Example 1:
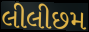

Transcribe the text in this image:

લીલીછમ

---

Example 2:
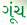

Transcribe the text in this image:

ગૂંચ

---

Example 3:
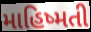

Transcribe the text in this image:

માહિષ્મતી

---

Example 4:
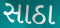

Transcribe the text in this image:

સાઠા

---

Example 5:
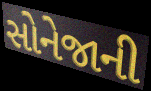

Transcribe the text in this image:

સોનેજાની